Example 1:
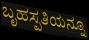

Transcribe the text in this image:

ಬೃಹಸ್ಪತಿಯನ್ನೂ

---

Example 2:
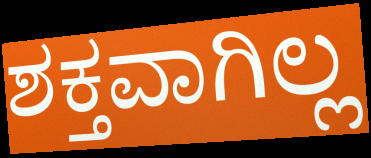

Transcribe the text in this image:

ಶಕ್ತವಾಗಿಲ್ಲ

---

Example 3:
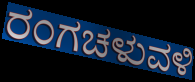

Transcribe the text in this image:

ರಂಗಚಳುವಳಿ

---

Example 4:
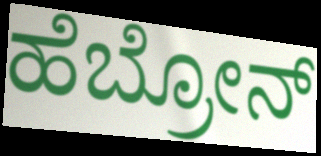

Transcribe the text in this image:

ಹೆಬ್ರೋನ್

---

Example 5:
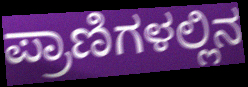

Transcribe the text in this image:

ಪ್ರಾಣಿಗಳಲ್ಲಿನ